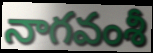
నాగవంశీ